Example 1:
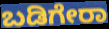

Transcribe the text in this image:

ಬಡಿಗೇರಾ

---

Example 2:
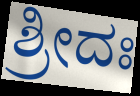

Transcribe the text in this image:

ಶ್ರೀದಃ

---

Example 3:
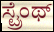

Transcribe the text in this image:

ಸ್ಟ್ರೆಂಥ್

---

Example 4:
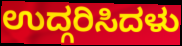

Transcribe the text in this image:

ಉದ್ಗರಿಸಿದಳು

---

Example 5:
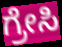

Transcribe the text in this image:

ಗ್ರೇಸಿ